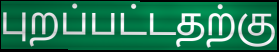
புறப்பட்டதற்கு